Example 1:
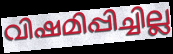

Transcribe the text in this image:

വിഷമിപ്പിച്ചില്ല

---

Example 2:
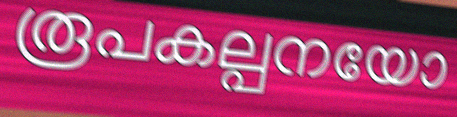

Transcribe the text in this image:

രൂപകല്പനയോ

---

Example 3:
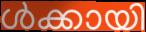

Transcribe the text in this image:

ൾക്കായി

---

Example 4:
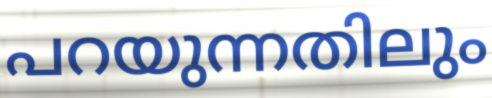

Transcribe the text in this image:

പറയുന്നതിലും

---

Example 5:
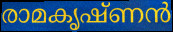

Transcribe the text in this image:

രാമകൃഷ്ണൻ